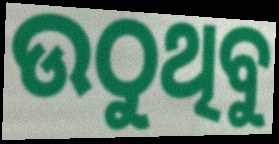
ଉଠୁଥିବୁ